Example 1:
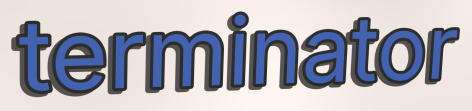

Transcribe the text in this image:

terminator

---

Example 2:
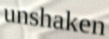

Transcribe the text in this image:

unshaken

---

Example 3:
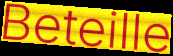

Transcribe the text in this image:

Beteille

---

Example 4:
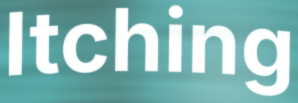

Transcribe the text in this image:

Itching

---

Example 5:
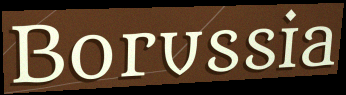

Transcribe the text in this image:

Borussia